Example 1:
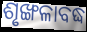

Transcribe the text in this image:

ଶୃଙ୍ଖଳାବଦ୍ଧ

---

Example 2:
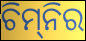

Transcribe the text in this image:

ଚିମ୍‌ନିର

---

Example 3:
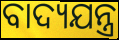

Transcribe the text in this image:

ବାଦ୍ୟଯନ୍ତ୍ର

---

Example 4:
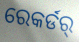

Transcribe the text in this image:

ରେକର୍ଡର୍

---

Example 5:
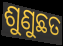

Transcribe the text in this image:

ଶୁଣୁଛତ